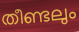
തീണ്ടലും